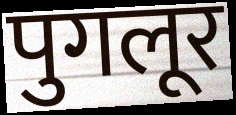
पुगलूर